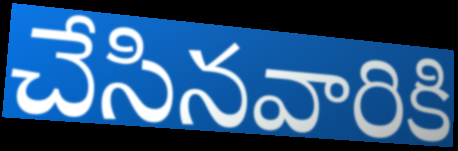
చేసినవారికి